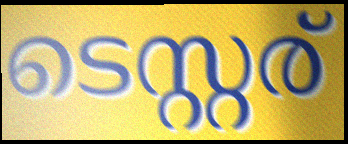
ടെസ്റ്റര്